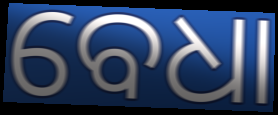
ବେଧା